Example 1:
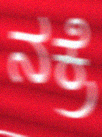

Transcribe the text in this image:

ನಕ್ರೆ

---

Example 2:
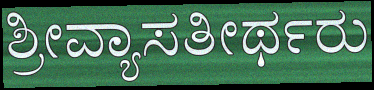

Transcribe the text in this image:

ಶ್ರೀವ್ಯಾಸತೀರ್ಥರು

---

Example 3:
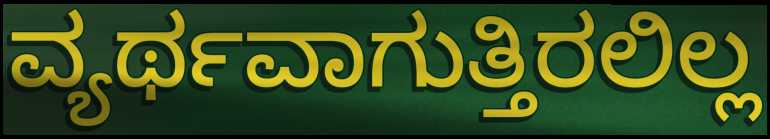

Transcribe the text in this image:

ವ್ಯರ್ಥವಾಗುತ್ತಿರಲಿಲ್ಲ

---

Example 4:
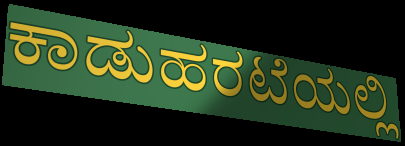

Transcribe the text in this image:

ಕಾಡುಹರಟೆಯಲ್ಲಿ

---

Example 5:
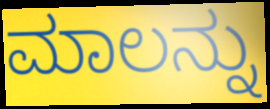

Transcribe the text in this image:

ಮಾಲನ್ನು